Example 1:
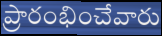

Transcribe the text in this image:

ప్రారంభించేవారు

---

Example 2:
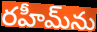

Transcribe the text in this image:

రహీమ్‌ను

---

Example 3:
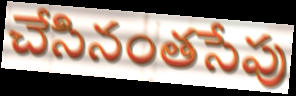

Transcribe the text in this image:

చేసినంతసేపు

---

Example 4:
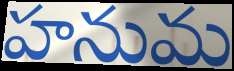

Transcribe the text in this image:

హనుమ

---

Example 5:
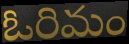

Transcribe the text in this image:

ఓరిమం